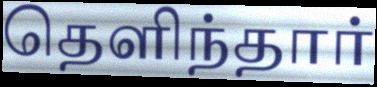
தெளிந்தார்